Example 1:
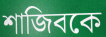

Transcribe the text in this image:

শাজিবকে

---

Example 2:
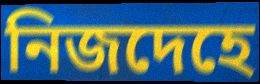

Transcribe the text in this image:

নিজদেহে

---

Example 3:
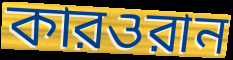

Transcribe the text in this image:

কারওরান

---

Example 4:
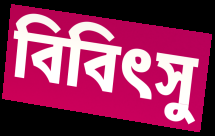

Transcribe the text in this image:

বিবিৎসু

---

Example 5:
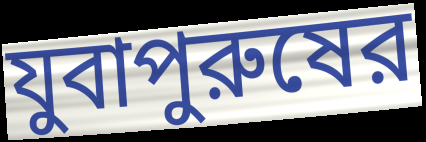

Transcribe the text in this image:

যুবাপুরুষের